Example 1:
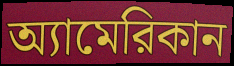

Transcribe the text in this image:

অ্যামেরিকান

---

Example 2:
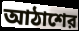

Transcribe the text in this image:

আঠাশের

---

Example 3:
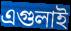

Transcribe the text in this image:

এগুলাই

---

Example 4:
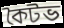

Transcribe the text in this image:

কৈটভ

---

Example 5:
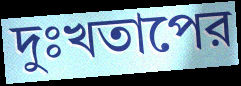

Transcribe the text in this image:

দুঃখতাপের